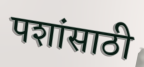
पशांसाठी